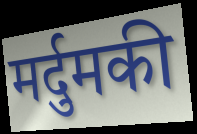
मर्दुमकी